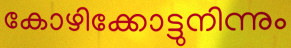
കോഴിക്കോട്ടുനിന്നും